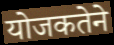
योजकतेने